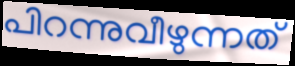
പിറന്നുവീഴുന്നത്